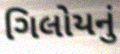
ગિલોયનું